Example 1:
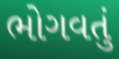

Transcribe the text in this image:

ભોગવતું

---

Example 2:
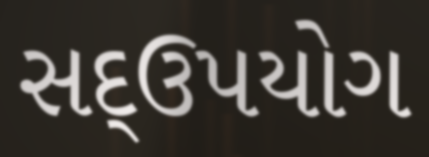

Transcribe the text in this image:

સદ્ઉપયોગ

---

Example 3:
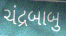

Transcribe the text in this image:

ચંદ્રબાબુ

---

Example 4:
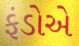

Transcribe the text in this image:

ફંડોએ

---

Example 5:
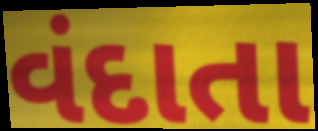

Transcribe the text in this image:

વંદાતા